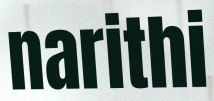
narithi